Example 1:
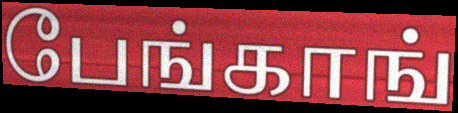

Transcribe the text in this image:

பேங்காங்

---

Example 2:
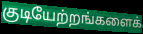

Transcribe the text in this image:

குடியேற்றங்களைக்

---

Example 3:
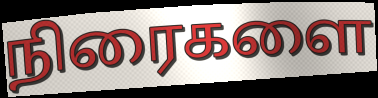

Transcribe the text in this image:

நிரைகளை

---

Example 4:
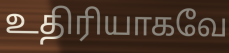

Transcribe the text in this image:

உதிரியாகவே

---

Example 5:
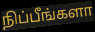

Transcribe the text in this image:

நிப்பீங்களா